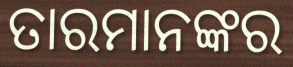
ତାରମାନଙ୍କର